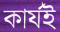
কার্যই